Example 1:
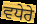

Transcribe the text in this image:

ਵਧੇਰੇ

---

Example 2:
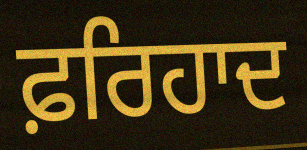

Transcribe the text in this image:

ਫ਼ਰਿਹਾਦ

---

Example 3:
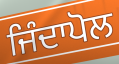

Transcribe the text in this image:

ਜਿੰਦਾਪੋਲ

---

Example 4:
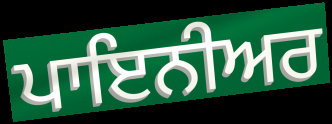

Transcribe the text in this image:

ਪਾਇਨੀਅਰ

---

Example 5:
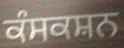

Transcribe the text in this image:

ਕੰਸਕਸ਼ਨ